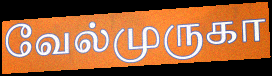
வேல்முருகா